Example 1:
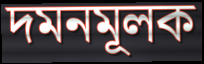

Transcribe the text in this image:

দমনমূলক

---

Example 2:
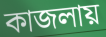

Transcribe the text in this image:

কাজলায়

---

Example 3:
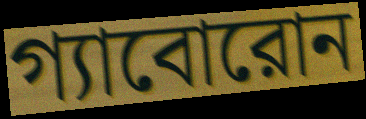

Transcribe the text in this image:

গ্যাবোরোন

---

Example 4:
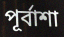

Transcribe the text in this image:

পূর্বাশা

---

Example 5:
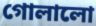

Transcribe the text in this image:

গোলালো